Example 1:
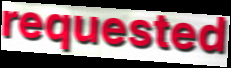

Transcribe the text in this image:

requested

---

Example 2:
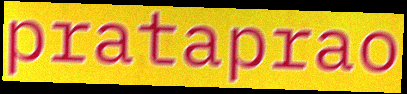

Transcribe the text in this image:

prataprao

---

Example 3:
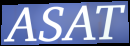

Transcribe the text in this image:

ASAT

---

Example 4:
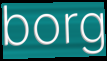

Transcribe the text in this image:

borg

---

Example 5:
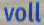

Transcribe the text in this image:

voll